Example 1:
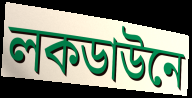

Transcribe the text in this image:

লকডাউনে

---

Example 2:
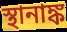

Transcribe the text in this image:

স্থানাঙ্ক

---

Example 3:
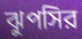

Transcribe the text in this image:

ঝুপসির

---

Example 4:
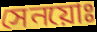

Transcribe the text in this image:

সেনয়োঃ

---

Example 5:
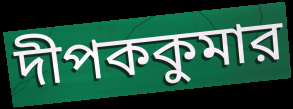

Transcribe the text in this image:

দীপককুমার